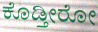
ಕೊಡ್ತೀರೋ